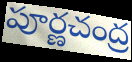
పూర్ణచంద్ర